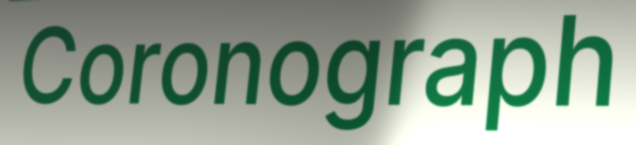
Coronograph